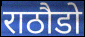
राठौडो